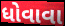
ધોવાવા